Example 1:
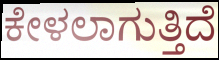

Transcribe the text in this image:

ಕೇಳಲಾಗುತ್ತಿದೆ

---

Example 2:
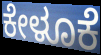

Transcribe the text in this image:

ಕೇಳೂಕೆ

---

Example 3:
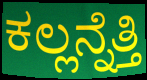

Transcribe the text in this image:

ಕಲ್ಲನ್ನೆತ್ತಿ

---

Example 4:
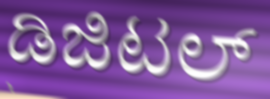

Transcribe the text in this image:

ಡಿಜಿಟಲ್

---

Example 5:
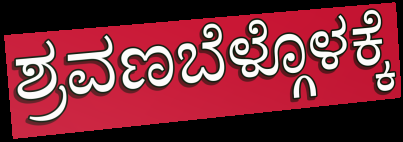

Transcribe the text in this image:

ಶ್ರವಣಬೆಳ್ಗೊಳಕ್ಕೆ